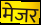
मेजर